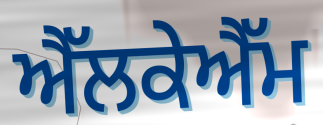
ਐੱਲਕੇਐੱਮ